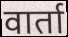
वार्ता